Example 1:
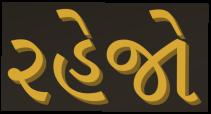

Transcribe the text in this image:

રહેજો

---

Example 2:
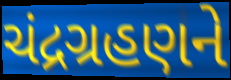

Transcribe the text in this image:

ચંદ્રગ્રહણને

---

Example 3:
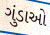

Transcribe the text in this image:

ગુંડાઓ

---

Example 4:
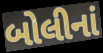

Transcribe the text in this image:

બોલીનાં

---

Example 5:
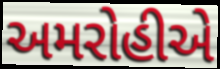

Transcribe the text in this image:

અમરોહીએ